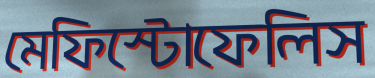
মেফিস্টোফেলিস